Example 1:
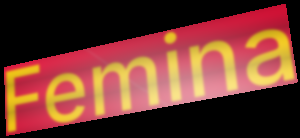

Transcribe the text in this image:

Femina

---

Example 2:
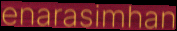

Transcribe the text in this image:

enarasimhan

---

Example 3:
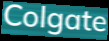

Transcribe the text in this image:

Colgate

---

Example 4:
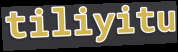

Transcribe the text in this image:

tiliyitu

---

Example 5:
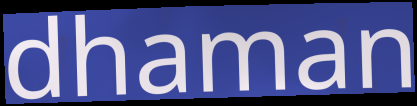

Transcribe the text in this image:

dhaman